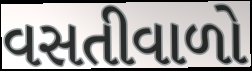
વસતીવાળો